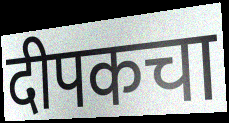
दीपकचा